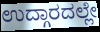
ಉದ್ಗಾರದಲ್ಲೇ